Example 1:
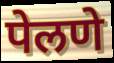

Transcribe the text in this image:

पेलणे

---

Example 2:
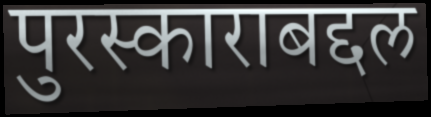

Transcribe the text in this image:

पुरस्काराबद्दल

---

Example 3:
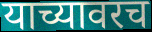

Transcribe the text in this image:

याच्यावरच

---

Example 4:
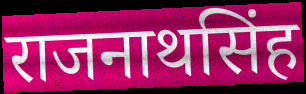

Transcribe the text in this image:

राजनाथसिंह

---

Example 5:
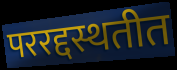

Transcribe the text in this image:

पररद्दस्थतीत